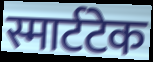
स्मार्टटेक